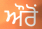
ਔਰੋਂ